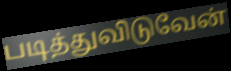
படித்துவிடுவேன்